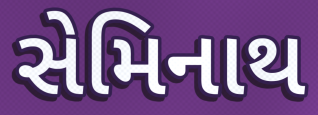
સેમિનાથ